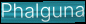
Phalguna